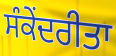
ਸੰਕੇਂਦਰੀਤਾ